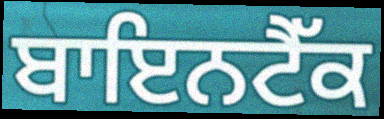
ਬਾਇਨਟੈੱਕ